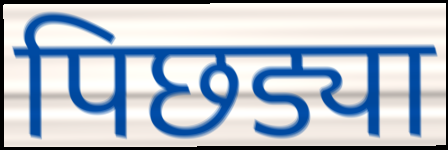
पिछड्या